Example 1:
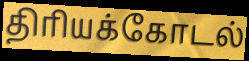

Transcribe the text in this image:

திரியக்கோடல்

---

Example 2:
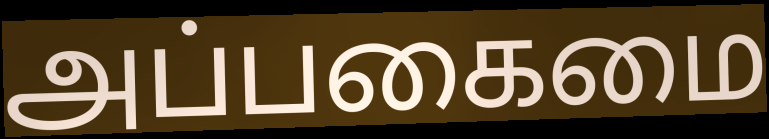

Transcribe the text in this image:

அப்பகைமை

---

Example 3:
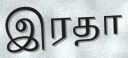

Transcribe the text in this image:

இரதா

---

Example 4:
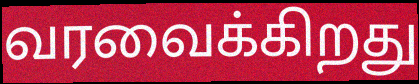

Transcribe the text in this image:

வரவைக்கிறது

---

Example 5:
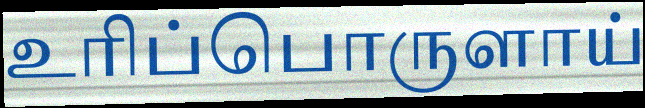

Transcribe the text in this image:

உரிப்பொருளாய்